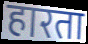
हारता